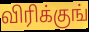
விரிக்குங்